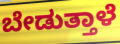
ಬೇಡುತ್ತಾಳೆ